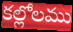
కల్లోలము